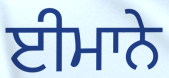
ਈਮਾਨੇ